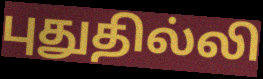
புதுதில்லி